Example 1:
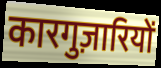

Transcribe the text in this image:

कारगुज़ारियों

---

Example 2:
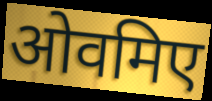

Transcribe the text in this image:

ओवमिए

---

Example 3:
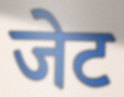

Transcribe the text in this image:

जेट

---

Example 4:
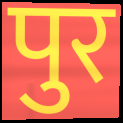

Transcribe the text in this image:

पुर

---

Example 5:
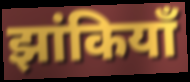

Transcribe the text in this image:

झांकियाँ